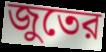
জুতের